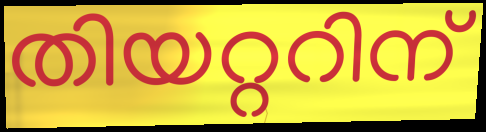
തിയറ്ററിന്